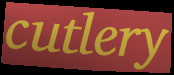
cutlery